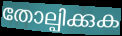
തോല്പിക്കുക